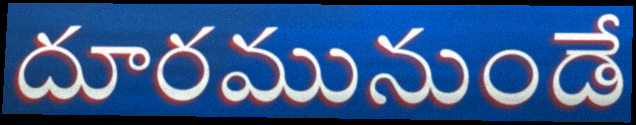
దూరమునుండే